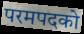
परमपदको